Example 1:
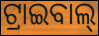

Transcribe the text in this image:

ଟ୍ରାଇବାଲ୍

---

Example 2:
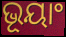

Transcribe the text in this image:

ଭୂୟାଂ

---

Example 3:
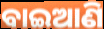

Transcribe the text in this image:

ବାଇଆଣି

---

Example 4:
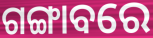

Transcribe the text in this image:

ଗଙ୍ଗାବରେ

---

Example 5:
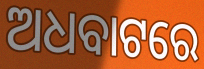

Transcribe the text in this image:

ଅଧବାଟରେ